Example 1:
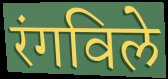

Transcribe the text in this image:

रंगविले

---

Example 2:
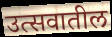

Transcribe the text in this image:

उत्सवातील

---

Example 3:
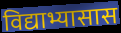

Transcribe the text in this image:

विद्याभ्यासास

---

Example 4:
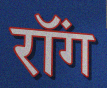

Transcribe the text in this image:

रॉंग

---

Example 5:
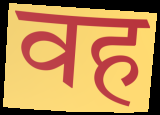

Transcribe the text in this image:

वह